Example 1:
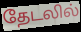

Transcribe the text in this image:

தேடலில்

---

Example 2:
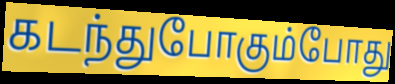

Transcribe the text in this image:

கடந்துபோகும்போது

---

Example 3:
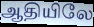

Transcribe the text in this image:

ஆதியிலே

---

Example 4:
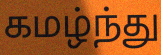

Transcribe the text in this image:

கமழ்ந்து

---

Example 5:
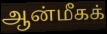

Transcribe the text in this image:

ஆன்மீகக்